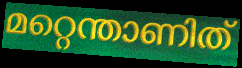
മറ്റെന്താണിത്